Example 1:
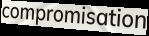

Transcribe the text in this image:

compromisation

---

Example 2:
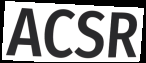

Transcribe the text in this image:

ACSR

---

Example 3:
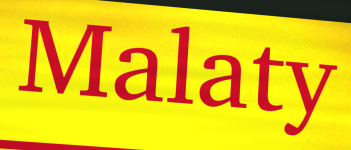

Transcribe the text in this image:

Malaty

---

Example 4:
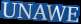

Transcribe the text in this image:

UNAWE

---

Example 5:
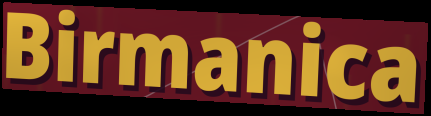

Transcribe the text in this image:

Birmanica